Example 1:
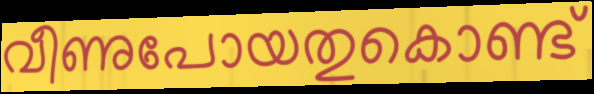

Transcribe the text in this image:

വീണുപോയതുകൊണ്ട്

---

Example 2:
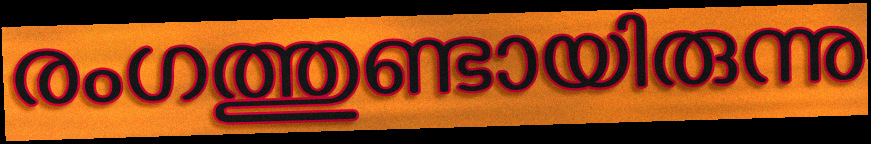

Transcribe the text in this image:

രംഗത്തുണ്ടായിരുന്നു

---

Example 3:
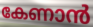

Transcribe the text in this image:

കേണാൻ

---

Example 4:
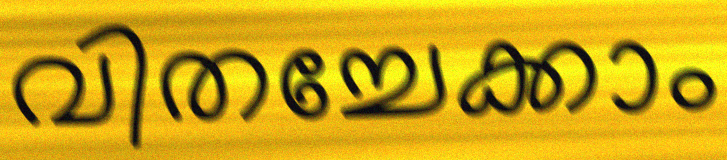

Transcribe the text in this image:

വിതച്ചേക്കാം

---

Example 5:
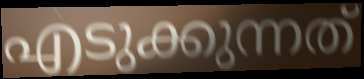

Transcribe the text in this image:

എടുക്കുന്നത്